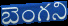
బెంగని